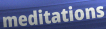
meditations